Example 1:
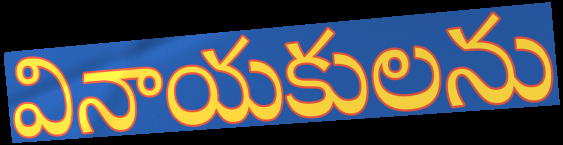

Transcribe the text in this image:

వినాయకులను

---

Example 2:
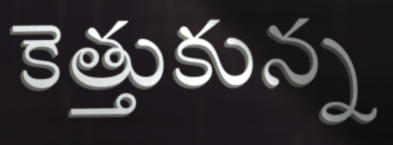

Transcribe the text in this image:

కెత్తుకున్న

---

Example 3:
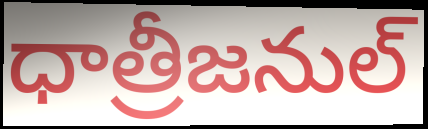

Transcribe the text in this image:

ధాత్రీజనుల్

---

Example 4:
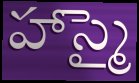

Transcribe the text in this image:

హాస్మై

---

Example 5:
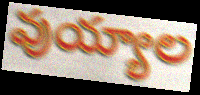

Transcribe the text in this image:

వుయ్యాల